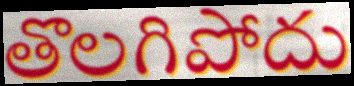
తొలగిపోదు